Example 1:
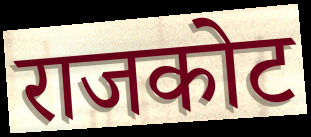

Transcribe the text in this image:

राजकोट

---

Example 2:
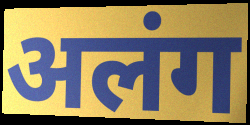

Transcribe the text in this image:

अलंग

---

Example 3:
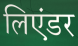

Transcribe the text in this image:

लिएंडर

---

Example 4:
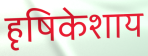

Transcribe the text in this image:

हृषिकेशाय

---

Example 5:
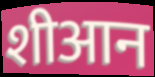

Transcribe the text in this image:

शीआन